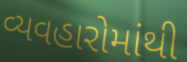
વ્યવહારોમાંથી